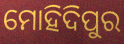
ମୋହିଦିପୁର